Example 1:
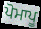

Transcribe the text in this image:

ਪੋਮਾਪੂ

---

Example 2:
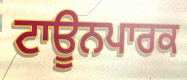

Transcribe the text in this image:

ਟਾਊਨਪਾਰਕ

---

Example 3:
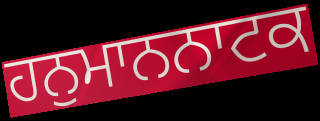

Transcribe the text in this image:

ਹਨੁਮਾਨਨਾਟਕ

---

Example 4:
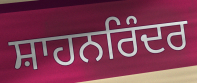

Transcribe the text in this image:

ਸ਼ਾਹਨਰਿੰਦਰ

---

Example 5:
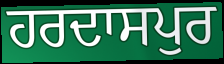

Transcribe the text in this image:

ਹਰਦਾਸਪੁਰ